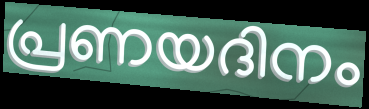
പ്രണയദിനം